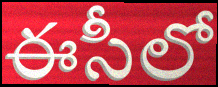
ఈసీలో